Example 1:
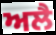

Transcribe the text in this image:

ਅਲੈ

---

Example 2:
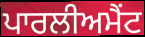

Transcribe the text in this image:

ਪਾਰਲੀਅਮੈਂਟ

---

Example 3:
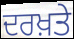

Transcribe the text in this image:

ਦਰਖ਼ਤੇ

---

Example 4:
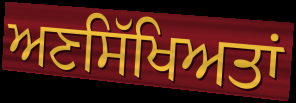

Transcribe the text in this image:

ਅਣਸਿੱਖਿਅਤਾਂ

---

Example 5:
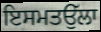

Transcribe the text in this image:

ਇਸਮਤਉੱਲਾ